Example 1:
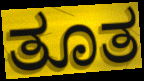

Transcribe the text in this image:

ತೂತ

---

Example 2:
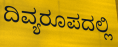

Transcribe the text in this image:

ದಿವ್ಯರೂಪದಲ್ಲಿ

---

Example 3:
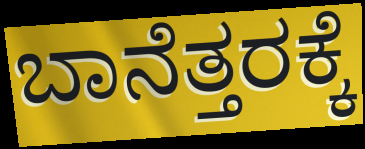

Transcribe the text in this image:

ಬಾನೆತ್ತರಕ್ಕೆ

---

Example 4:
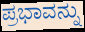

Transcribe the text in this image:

ಪ್ರಭಾವನ್ನು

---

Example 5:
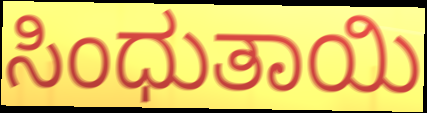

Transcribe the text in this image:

ಸಿಂಧುತಾಯಿ